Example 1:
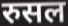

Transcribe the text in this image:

रुसल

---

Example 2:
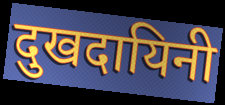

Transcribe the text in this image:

दुखदायिनी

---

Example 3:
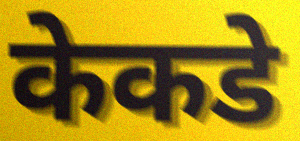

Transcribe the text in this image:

केकडे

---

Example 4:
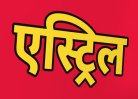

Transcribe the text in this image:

एस्ट्रिल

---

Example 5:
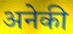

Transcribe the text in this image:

अनेकी